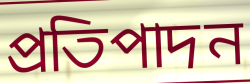
প্রতিপাদন